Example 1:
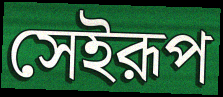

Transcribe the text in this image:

সেইরূপ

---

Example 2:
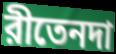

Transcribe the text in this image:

রীতেনদা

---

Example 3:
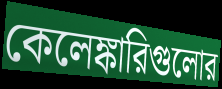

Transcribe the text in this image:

কেলেঙ্কারিগুলোর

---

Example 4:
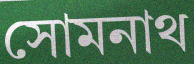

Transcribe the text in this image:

সোমনাথ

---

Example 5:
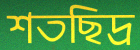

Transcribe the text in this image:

শতছিদ্র